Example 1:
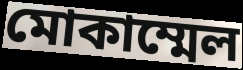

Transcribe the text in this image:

মোকাম্মেল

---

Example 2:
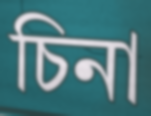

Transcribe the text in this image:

চিনা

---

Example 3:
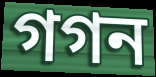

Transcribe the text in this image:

গগন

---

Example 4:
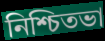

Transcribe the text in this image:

নিশ্চিতভা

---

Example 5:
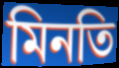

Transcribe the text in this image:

মিনতি